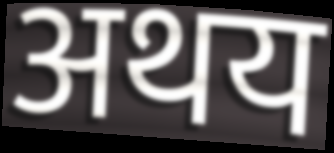
अथय